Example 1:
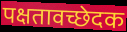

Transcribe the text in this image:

पक्षतावच्छेदक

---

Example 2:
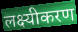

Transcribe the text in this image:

लक्ष्यीकरण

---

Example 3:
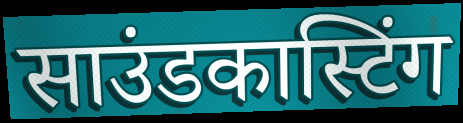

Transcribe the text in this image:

साउंडकास्टिंग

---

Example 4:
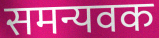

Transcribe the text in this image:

समन्यवक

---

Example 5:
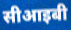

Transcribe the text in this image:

सीआइबी